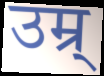
उम्र्